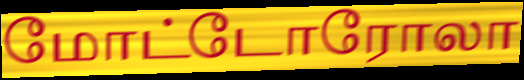
மோட்டோரோலா